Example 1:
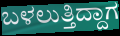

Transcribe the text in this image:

ಬಳಲುತ್ತಿದ್ದಾಗ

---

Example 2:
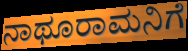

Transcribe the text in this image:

ನಾಥೂರಾಮನಿಗೆ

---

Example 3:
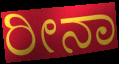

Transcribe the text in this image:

ರೀನಾ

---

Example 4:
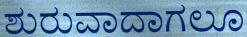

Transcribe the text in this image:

ಶುರುವಾದಾಗಲೂ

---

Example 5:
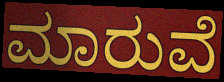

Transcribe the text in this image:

ಮಾರುವೆ